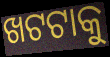
ଖଟଟାକୁ